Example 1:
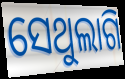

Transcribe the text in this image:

ସେଥୁଲାଗି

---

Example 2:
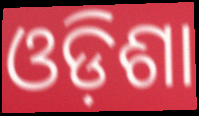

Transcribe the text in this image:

ଓଡ଼ିଶା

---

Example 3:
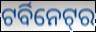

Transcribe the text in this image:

ଟର୍ବିନେଟ୍‌ର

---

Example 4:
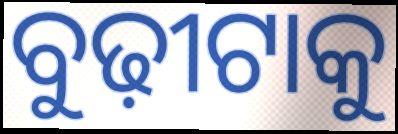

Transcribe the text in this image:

ବୁଢ଼ୀଟାକୁ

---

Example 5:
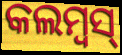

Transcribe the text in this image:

କଲମ୍ବସ୍